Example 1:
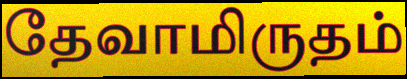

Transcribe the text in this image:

தேவாமிருதம்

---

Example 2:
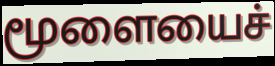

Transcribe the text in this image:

மூளையைச்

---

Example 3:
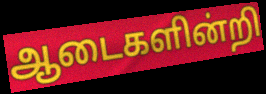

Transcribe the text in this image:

ஆடைகளின்றி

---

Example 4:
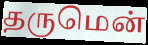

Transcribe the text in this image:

தருமென்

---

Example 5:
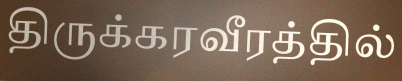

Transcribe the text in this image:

திருக்கரவீரத்தில்